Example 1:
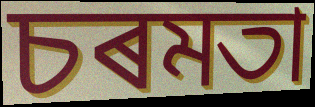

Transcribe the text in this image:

চৰমতা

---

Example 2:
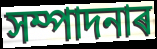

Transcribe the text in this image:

সম্পাদনাৰ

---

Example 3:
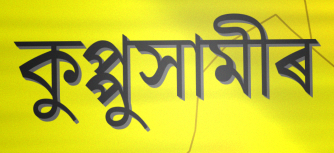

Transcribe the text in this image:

কুপ্পুসামীৰ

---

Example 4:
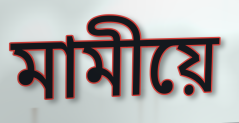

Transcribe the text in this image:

মামীয়ে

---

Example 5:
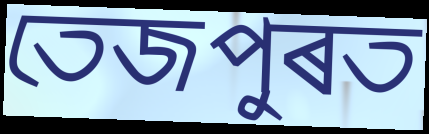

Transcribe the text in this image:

তেজপুৰত